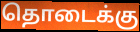
தொடைக்கு